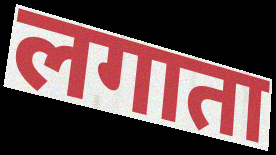
लगाता